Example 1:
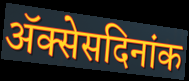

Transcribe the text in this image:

ॲक्सेसदिनांक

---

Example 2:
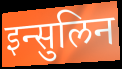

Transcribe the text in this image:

इन्सुलिन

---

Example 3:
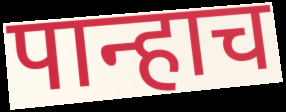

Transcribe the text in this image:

पान्हाच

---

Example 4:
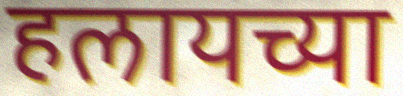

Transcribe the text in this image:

हलायच्या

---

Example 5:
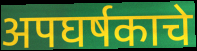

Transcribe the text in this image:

अपघर्षकाचे